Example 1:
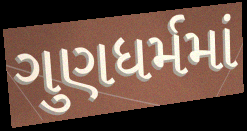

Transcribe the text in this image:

ગુણધર્મમાં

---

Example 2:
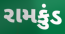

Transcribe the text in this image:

રામકુંડ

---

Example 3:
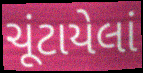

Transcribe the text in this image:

ચૂંટાયેલાં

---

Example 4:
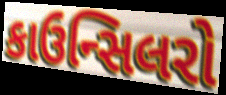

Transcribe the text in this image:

કાઉન્સિલરો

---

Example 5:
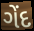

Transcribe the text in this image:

ગેંદ